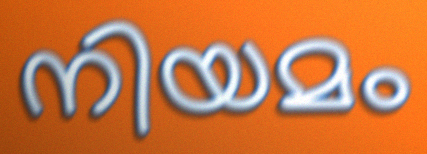
നിയമം